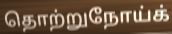
தொற்றுநோய்க்